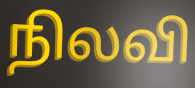
நிலவி